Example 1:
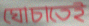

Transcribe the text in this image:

ঘোচাতেই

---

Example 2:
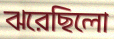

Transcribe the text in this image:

ঝরেছিলো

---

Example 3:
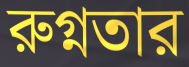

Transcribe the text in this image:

রুগ্নতার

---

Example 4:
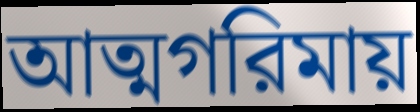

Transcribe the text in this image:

আত্মগরিমায়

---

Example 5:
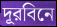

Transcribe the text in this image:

দূরবিনে